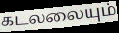
கடலலையும்